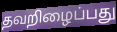
தவறிழைப்பது